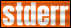
stderr